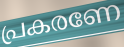
പ്രകരണേ